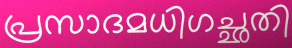
പ്രസാദമധിഗച്ഛതി